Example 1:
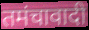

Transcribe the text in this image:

तमंचावादी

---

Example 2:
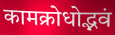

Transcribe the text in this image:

कामक्रोधोद्भवं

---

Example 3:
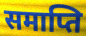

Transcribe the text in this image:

समाप्ति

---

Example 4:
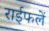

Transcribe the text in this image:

राईफलें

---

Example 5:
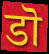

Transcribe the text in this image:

डॊ